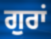
ਗੁਰਾਂ